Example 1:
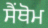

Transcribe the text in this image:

ਸੈਂਥੋਮ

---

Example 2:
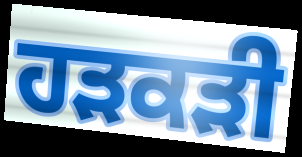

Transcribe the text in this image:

ਹੜਕੜੀ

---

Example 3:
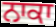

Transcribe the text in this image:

ਨਾਕਾ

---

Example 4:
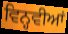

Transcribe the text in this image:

ਵਿਨ੍ਹਵੀਆਂ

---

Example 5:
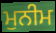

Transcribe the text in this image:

ਮੁਨੀਮ